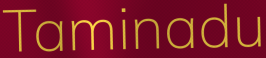
Taminadu